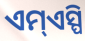
ଏମ୍ଏସ୍ପି